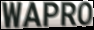
WAPRO